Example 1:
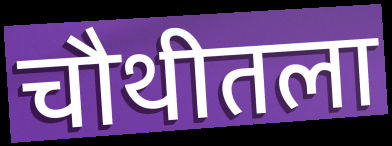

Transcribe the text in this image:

चौथीतला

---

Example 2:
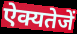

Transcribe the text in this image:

ऐक्यतेजें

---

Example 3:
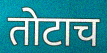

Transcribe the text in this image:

तोटाच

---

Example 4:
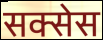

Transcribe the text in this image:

सक्सेस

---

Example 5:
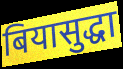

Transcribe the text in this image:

बियासुद्धा